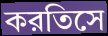
করতিসে